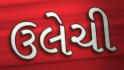
ઉલેચી